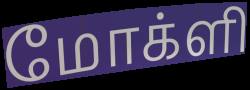
மோக்ளி